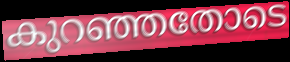
കുറഞ്ഞതോടെ